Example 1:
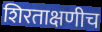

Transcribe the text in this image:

शिरताक्षणीच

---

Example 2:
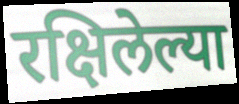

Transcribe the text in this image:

रक्षिलेल्या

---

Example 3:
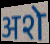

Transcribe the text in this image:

अशे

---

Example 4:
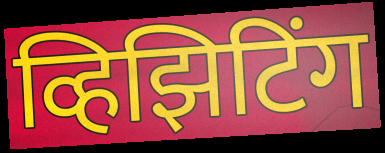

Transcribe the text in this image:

व्हिझिटिंग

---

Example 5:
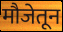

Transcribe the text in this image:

मौजेतून